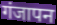
गंजापन